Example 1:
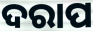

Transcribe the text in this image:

ଦରାପ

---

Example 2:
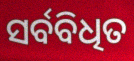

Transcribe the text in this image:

ସର୍ବବିଧିତ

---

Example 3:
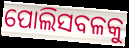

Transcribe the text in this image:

ପୋଲିସବଳକୁ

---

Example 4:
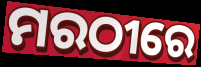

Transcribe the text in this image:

ମରଠୀରେ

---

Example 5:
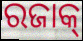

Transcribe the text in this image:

ରଜାକ୍